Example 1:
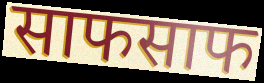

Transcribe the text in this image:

साफसाफ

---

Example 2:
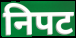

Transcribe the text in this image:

निपट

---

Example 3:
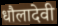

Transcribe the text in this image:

धौलादेवी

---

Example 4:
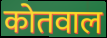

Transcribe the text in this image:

कोतवाल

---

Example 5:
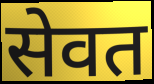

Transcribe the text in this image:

सेवत